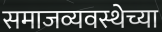
समाजव्यवस्थेच्या